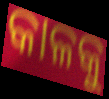
କାଳକୁ